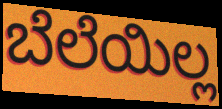
ಬೆಲೆಯಿಲ್ಲ